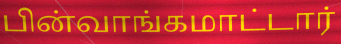
பின்வாங்கமாட்டார்